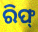
ରିଫ୍